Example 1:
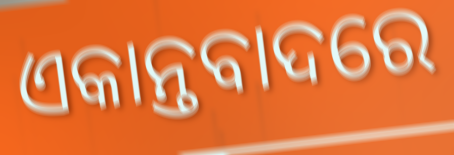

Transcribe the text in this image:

ଏକାନ୍ତବାଦରେ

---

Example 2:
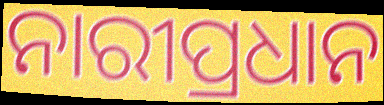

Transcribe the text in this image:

ନାରୀପ୍ରଧାନ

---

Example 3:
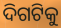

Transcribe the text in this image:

ଦିଗଟିକୁ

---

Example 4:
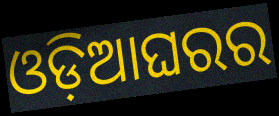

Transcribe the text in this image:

ଓଡ଼ିଆଘରର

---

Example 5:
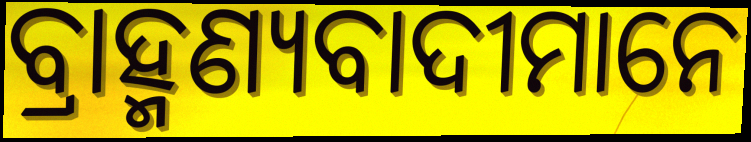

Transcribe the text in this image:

ବ୍ରାହ୍ମଣ୍ୟବାଦୀମାନେ